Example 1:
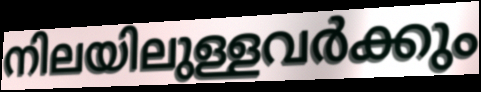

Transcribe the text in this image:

നിലയിലുള്ളവർക്കും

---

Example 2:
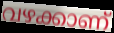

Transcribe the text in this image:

വഴക്കാണ്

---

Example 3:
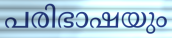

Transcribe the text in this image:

പരിഭാഷയും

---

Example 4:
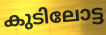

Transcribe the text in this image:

കുടിലോട്ട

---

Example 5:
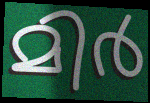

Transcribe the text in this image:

മിർ